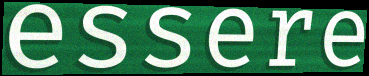
essere